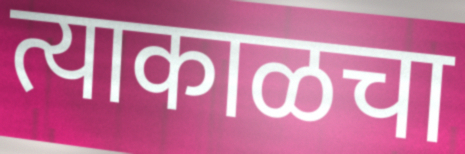
त्याकाळचा